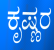
ಕೃಷ್ಣರ